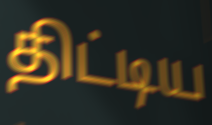
திட்டிய